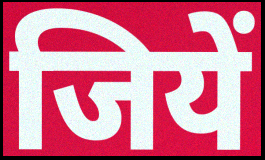
जियें